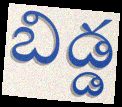
బిడ్డ